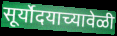
सूर्योदयाच्यावेळी